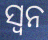
ସ୍ୱନ